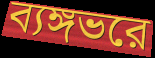
ব্যঙ্গভরে